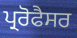
ਪ੍ਰਰੋਫੈਸਰ